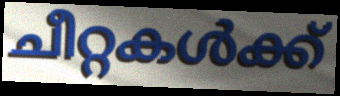
ചീറ്റകൾക്ക്